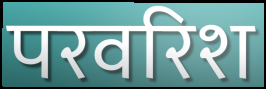
परवरिश